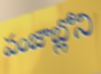
పంజాబ్లోని